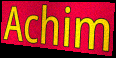
Achim